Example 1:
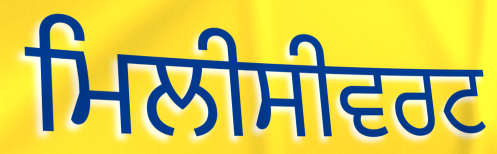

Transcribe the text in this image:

ਮਿਲੀਸੀਵਰਟ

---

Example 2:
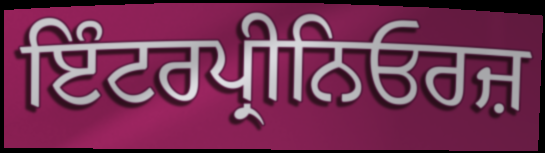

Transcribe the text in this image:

ਇੰਟਰਪ੍ਰੀਨਿਓਰਜ਼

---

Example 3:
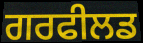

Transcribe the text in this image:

ਗਰਫੀਲਡ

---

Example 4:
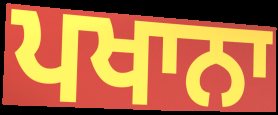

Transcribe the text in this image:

ਪਖਾਨਾ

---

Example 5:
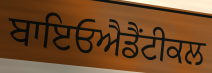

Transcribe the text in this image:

ਬਾਇਓਐਡੈਂਟੀਕਲ